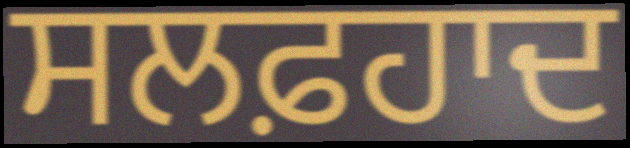
ਸਲਫ਼ਹਾਦ